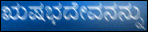
ಋಷಭದೇವನನ್ನು